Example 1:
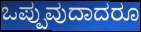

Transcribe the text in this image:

ಒಪ್ಪುವುದಾದರೂ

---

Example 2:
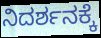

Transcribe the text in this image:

ನಿದರ್ಶನಕ್ಕೆ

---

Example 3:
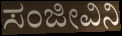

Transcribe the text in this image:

ಸಂಜೀವಿನಿ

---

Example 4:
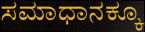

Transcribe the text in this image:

ಸಮಾಧಾನಕ್ಕೂ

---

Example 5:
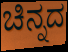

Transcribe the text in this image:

ಚಿನ್ನದ